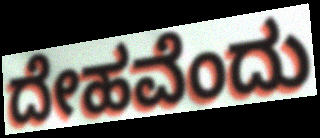
ದೇಹವೆಂದು